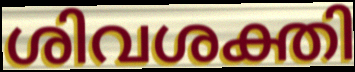
ശിവശക്തി